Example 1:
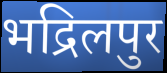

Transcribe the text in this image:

भद्रिलपुर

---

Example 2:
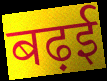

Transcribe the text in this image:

बढ़ई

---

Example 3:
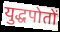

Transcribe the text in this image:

युद्धपोतों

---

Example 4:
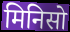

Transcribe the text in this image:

मिनिसो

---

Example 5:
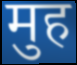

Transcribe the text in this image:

मुह